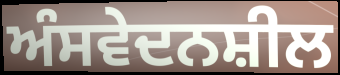
ਅੰਸਵੇਦਨਸ਼ੀਲ